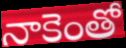
నాకెంతో